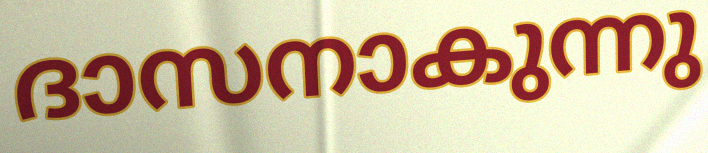
ദാസനാകുന്നു